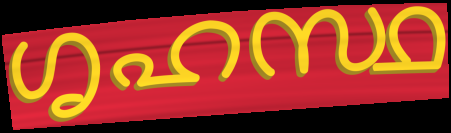
ഗൃഹസ്ഥ